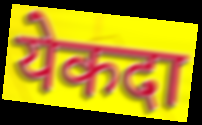
येकदा